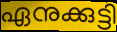
ഏനുക്കുട്ടി